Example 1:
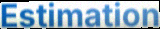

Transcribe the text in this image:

Estimation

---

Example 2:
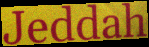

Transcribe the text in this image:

Jeddah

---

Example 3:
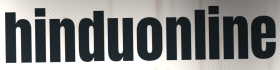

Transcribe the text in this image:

hinduonline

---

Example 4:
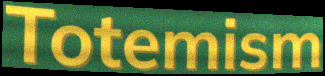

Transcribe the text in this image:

Totemism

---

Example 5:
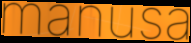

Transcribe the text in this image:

manusa